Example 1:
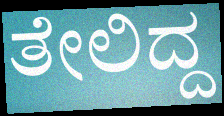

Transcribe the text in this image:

ತೇಲಿದ್ದ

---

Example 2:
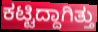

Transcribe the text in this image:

ಕಟ್ಟಿದ್ದಾಗಿತ್ತು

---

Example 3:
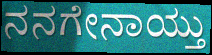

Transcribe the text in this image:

ನನಗೇನಾಯ್ತು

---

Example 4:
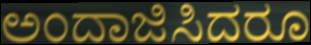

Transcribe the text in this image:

ಅಂದಾಜಿಸಿದರೂ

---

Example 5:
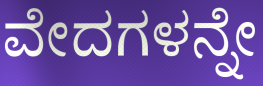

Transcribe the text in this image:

ವೇದಗಳನ್ನೇ